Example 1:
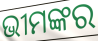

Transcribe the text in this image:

ଭୀମଙ୍କର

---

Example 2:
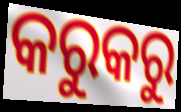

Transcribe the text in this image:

କରୁକରୁ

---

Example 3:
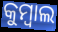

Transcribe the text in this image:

କୁମ୍ବାଲ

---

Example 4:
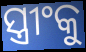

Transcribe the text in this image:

ସ୍ତ୍ରୀଂକୁ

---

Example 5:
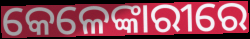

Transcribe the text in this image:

କେଳେଙ୍କାରୀରେ